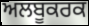
ਅਲਬੂਕਰਕ